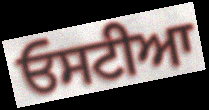
ਓਸਟੀਆ